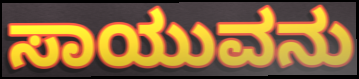
ಸಾಯುವನು